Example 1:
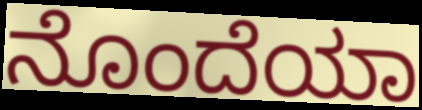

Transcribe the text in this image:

ನೊಂದೆಯಾ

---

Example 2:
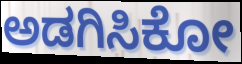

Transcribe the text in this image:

ಅಡಗಿಸಿಕೋ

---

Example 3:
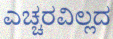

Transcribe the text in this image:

ಎಚ್ಚರವಿಲ್ಲದ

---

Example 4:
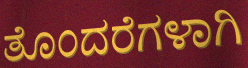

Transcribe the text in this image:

ತೊಂದರೆಗಳಾಗಿ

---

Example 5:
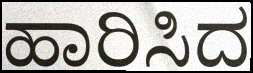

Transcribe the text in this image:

ಹಾರಿಸಿದ